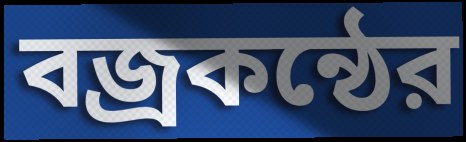
বজ্রকন্ঠের